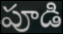
పూడి